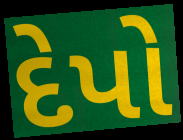
દેપો